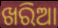
ଖରିଆ